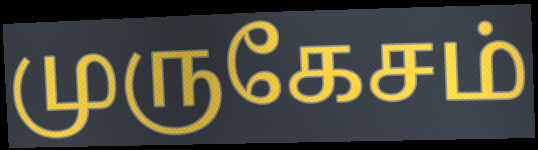
முருகேசம்